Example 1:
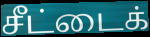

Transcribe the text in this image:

சீட்டைக்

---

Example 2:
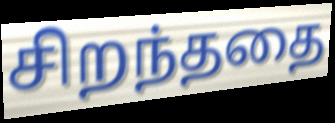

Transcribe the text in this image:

சிறந்ததை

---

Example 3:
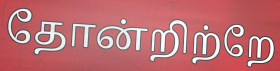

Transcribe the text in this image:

தோன்றிற்றே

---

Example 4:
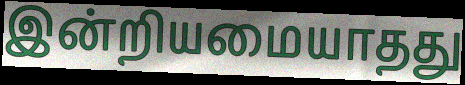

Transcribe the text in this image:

இன்றியமையாதது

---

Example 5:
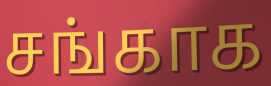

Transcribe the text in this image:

சங்காக